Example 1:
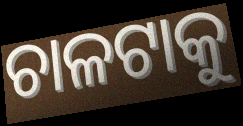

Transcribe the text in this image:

ଚାଳଟାକୁ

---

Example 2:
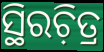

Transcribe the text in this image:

ସ୍ଥିରଚ଼ିତ୍ର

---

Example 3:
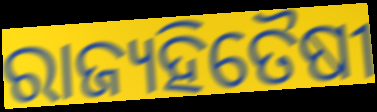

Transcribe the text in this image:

ରାଜ୍ୟହିତୈଷୀ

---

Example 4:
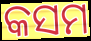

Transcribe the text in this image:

କସମ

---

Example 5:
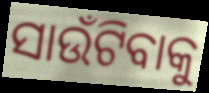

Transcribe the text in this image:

ସାଉଁଟିବାକୁ